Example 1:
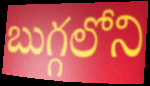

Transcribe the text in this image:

బుగ్గలోని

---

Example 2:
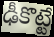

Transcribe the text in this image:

ఢీకొట్టే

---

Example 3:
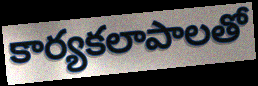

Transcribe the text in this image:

కార్యకలాపాలతో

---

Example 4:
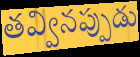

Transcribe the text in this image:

తవ్వినప్పుడు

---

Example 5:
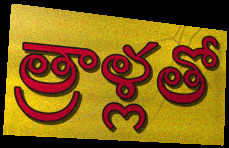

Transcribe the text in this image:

త్రాళ్లతో